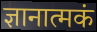
ज्ञानात्मकं